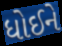
ધોઈને